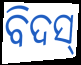
ବିଦସ୍